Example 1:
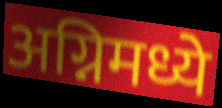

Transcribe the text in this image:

अग्निमध्ये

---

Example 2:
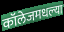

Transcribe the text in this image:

कॉलेजमधल्या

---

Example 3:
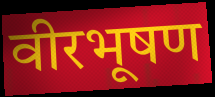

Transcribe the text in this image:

वीरभूषण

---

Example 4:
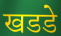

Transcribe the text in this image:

खडडे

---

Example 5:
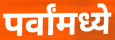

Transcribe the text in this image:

पर्वांमध्ये